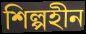
শিল্পহীন